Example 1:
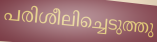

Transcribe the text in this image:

പരിശീലിച്ചെടുത്തു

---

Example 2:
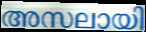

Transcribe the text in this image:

അസലായി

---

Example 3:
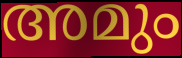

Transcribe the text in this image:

അമും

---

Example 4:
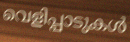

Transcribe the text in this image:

വെളിപ്പാടുകൾ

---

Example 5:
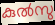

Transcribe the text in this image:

കുൽസു